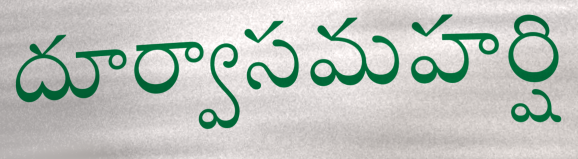
దూర్వాసమహర్షి